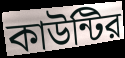
কাউন্টির